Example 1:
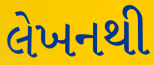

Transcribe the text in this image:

લેખનથી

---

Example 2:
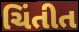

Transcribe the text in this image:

ચિંતીત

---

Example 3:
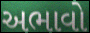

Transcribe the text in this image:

અભાવો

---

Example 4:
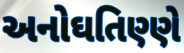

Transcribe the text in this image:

અનોઘતિણ્ણે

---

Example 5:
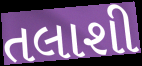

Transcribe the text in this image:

તલાશી